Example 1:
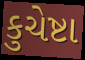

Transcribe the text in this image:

કુચેષ્ટા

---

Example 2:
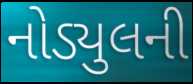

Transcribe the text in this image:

નોડ્યુલની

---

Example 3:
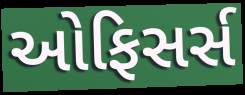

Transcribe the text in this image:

ઓફિસર્સ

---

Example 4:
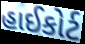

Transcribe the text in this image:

હાઈકોર્ટ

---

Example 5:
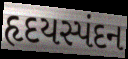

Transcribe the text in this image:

હૃદયસ્પંદન